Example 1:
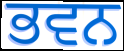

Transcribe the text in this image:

ਭਵਨ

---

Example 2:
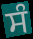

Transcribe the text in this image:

ਸੰ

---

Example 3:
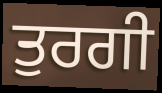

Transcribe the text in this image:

ਤੁਰਗੀ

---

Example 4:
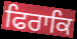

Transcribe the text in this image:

ਫਿਰਾਕਿ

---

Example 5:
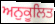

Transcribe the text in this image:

ਅਨੁਕੂਲਿਤ